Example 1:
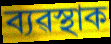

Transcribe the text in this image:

ব্যৱস্থাক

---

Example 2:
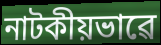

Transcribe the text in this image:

নাটকীয়ভাৱে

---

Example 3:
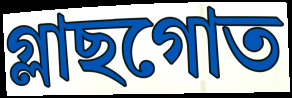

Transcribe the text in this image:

গ্লাছগোত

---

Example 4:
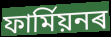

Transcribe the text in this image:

ফাৰ্মিয়নৰ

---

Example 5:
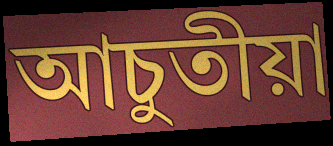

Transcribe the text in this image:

আচুতীয়া